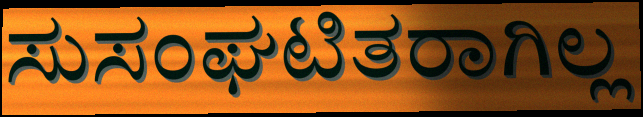
ಸುಸಂಘಟಿತರಾಗಿಲ್ಲ